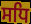
ਸਧਿ